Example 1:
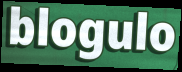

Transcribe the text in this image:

blogulo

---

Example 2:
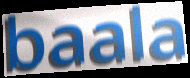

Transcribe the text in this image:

baala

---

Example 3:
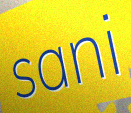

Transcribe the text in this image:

sani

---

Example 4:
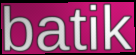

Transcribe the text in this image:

batik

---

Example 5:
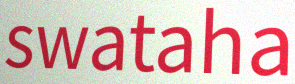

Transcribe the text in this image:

swataha